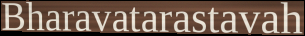
Bharavatarastavah